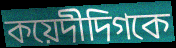
কয়েদীদিগকে